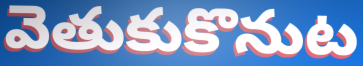
వెతుకుకొనుట